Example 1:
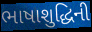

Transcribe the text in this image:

ભાષાશુદ્ધિની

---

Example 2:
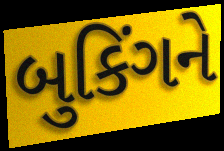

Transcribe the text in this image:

બુકિંગને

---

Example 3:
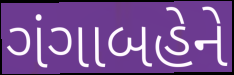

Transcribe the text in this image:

ગંગાબહેને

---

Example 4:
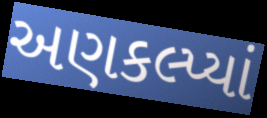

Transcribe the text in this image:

અણકલ્પ્યાં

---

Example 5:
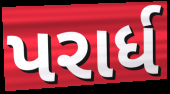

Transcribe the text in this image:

પરાર્ધ